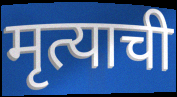
मृत्याची